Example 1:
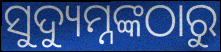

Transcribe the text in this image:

ସୁଦ୍ୟୁମ୍ନଙ୍କଠାରୁ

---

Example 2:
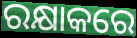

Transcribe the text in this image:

ରକ୍ଷାକରେ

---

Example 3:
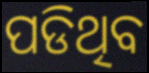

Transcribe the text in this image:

ପଡିଥିବ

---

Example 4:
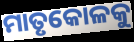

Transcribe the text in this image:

ମାତୃକୋଳକୁ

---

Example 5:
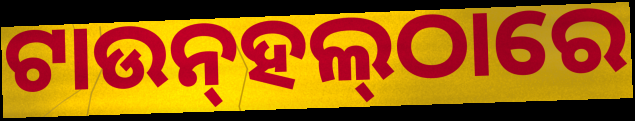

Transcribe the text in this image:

ଟାଉନ୍‌ହଲ୍‌ଠାରେ